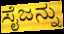
ಸೈಜನ್ನು